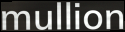
mullion